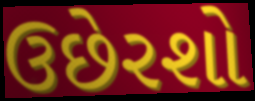
ઉછેરશો